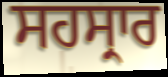
ਸਹਸ੍ਰਾਰ